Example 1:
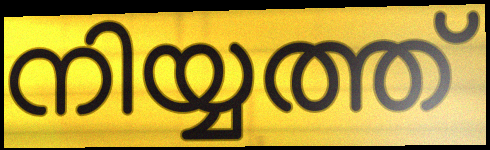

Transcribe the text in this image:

നിയ്യത്ത്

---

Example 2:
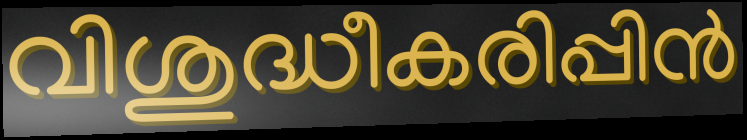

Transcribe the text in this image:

വിശുദ്ധീകരിപ്പിൻ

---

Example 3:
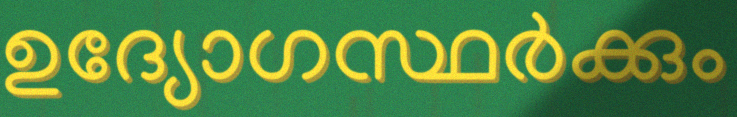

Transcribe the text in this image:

ഉദ്യോഗസ്ഥർക്കും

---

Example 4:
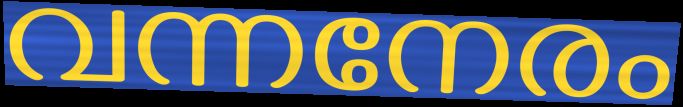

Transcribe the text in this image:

വന്നനേരം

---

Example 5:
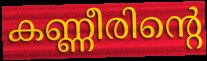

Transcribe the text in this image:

കണ്ണീരിന്റെ